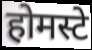
होमस्टे